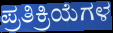
ಪ್ರತಿಕ್ರಿಯೆಗಳ